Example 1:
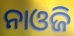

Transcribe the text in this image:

ନାଓଜି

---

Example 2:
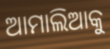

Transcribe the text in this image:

ଆମାଲିଆକୁ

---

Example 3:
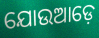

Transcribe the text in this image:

ଯୋଉଆଡ଼େ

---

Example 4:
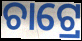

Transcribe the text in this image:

ଚାଟ୍ରେ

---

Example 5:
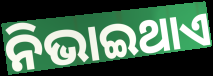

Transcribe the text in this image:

ନିଭାଇଥାଏ